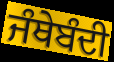
ਜੰਥੇਬੰਦੀ